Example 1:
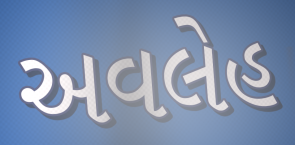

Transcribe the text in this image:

અવલેહ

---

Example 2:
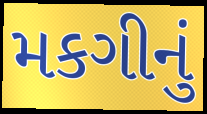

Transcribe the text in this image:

મકગીનું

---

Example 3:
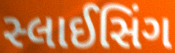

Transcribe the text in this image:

સ્લાઈસિંગ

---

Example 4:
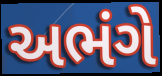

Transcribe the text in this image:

અભંગે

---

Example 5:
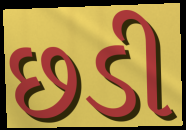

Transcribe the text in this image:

છડી